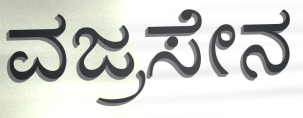
ವಜ್ರಸೇನ